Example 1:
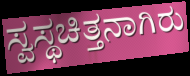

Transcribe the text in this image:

ಸ್ವಸ್ಥಚಿತ್ತನಾಗಿರು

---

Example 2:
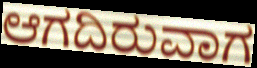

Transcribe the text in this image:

ಆಗದಿರುವಾಗ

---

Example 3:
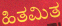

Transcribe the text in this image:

ಹಿತಮಿತ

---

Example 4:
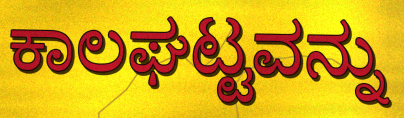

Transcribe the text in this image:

ಕಾಲಘಟ್ಟವನ್ನು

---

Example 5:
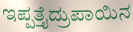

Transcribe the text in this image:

ಇಪ್ಪತ್ತೈದ್ರುಪಾಯಿನ